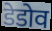
डेडोव